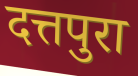
दत्तपुरा